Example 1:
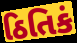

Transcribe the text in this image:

ઠિતિકં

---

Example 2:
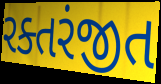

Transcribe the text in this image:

રક્તરંજીત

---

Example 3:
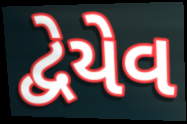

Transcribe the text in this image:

દ્વેયેવ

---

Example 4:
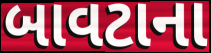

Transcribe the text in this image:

બાવટાના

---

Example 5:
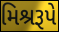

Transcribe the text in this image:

મિશ્રરૂપે